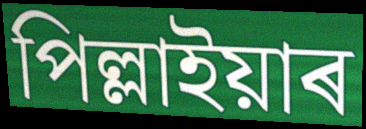
পিল্লাইয়াৰ